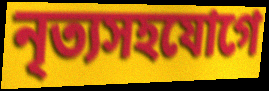
নৃত্যসহযোগে